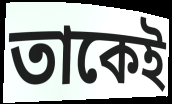
তাকেই